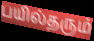
பயில்தரும்